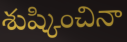
శుష్కించినా